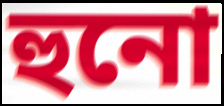
হুনো